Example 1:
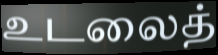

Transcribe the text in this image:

உடலைத்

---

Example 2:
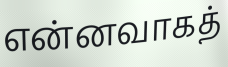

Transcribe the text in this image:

என்னவாகத்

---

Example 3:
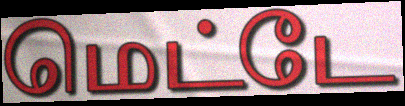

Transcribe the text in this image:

மெட்டே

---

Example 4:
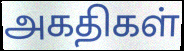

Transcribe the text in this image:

அகதிகள்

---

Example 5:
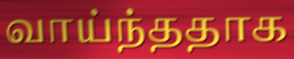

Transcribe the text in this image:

வாய்ந்ததாக